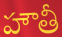
హౌతీ